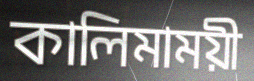
কালিমাময়ী